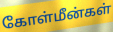
கோள்மீன்கள்